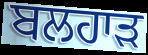
ਬਲਹਾੜ